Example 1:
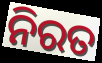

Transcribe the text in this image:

ନିରତ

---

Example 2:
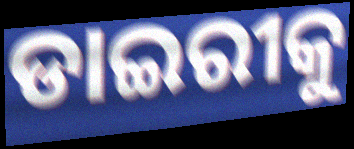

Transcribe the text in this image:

ଡାଇରୀକୁ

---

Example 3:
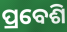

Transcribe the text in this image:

ପ୍ରବେଶି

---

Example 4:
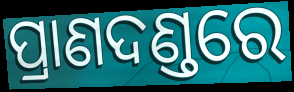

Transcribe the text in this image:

ପ୍ରାଣଦଣ୍ଡରେ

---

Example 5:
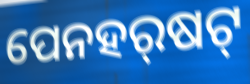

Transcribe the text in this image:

ପେନହର୍‍ଷଟ୍